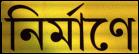
নির্মাণে